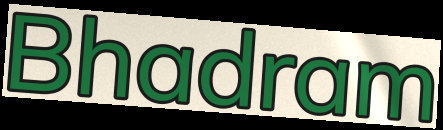
Bhadram